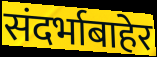
संदर्भाबाहेर